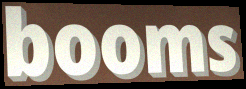
booms